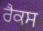
ਰੈਕਸ